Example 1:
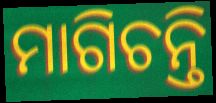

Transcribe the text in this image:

ମାଗିଚନ୍ତି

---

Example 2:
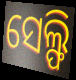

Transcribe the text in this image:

ସେଲ୍ଫି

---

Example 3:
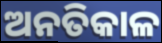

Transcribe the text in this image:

ଅନତିକାଳ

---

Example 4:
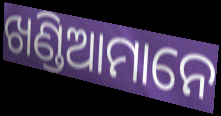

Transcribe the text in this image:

ଖଣ୍ଡିଆମାନେ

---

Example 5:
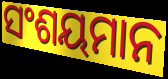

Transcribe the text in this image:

ସଂଶୟମାନ